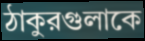
ঠাকুরগুলাকে